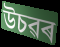
উচৱৰ